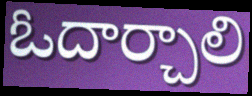
ఓదార్చాలి